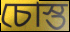
চোস্ত